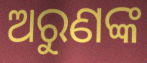
ଅରୁଣଙ୍କ